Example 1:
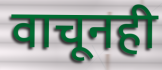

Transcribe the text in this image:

वाचूनही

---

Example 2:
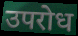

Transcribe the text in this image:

उपरोध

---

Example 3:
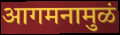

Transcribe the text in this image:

आगमनामुळं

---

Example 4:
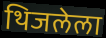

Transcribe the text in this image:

थिजलेला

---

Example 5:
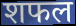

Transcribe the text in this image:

शफल